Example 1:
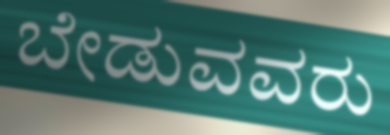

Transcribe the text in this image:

ಬೇಡುವವರು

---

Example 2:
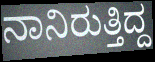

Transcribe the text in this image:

ನಾನಿರುತ್ತಿದ್ದ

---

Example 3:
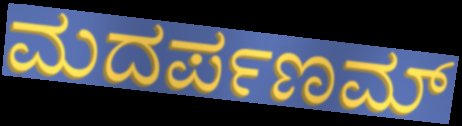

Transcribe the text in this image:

ಮದರ್ಪಣಮ್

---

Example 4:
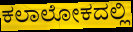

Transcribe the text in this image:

ಕಲಾಲೋಕದಲ್ಲಿ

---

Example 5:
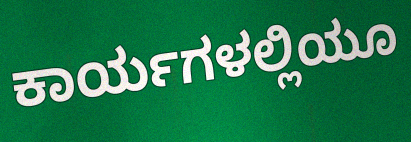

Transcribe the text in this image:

ಕಾರ್ಯಗಳಲ್ಲಿಯೂ